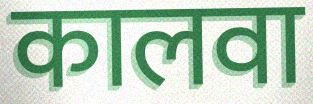
कालवा